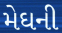
મેઘની